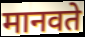
मानवते